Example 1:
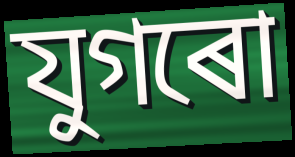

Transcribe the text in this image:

যুগৰো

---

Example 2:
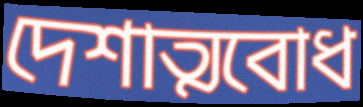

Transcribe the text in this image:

দেশাত্মবোধ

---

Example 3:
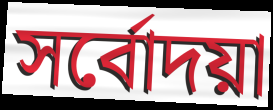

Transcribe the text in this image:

সৰ্বোদয়া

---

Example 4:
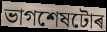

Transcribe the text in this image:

ভাগশেষটোৰ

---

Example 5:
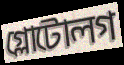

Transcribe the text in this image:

গ্লোটোলগ